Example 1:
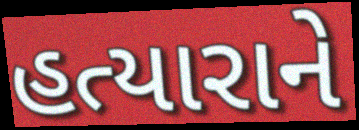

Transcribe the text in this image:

હત્યારાને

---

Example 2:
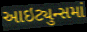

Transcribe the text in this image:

આઇટ્યુન્સમાં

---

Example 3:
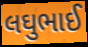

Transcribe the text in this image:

લઘુભાઈ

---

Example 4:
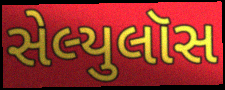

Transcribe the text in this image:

સેલ્યુલૉસ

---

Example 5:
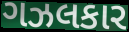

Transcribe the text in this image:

ગઝલકાર